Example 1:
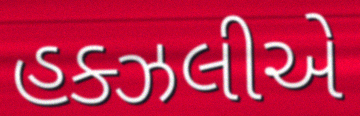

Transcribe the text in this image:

હક્ઝલીએ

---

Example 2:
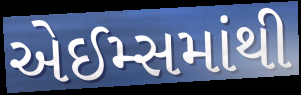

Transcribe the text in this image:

એઈમ્સમાંથી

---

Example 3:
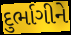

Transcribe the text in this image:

દુર્ભાગીને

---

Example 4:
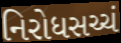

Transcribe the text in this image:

નિરોધસચ્ચં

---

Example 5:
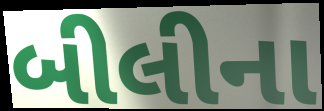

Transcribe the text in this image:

બીલીના